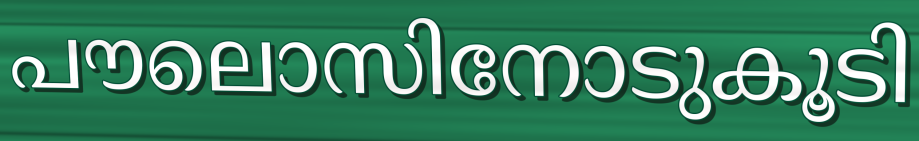
പൗലൊസിനോടുകൂടി